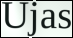
Ujas